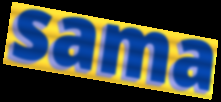
sama